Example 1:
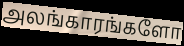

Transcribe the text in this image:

அலங்காரங்களோ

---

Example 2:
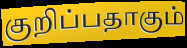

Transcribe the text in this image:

குறிப்பதாகும்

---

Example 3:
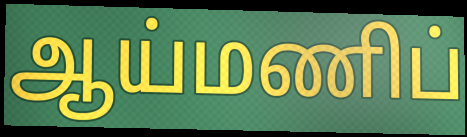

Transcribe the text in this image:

ஆய்மணிப்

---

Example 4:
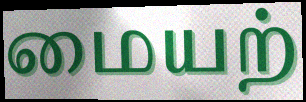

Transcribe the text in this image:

மையற்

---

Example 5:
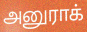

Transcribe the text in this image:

அனுராக்